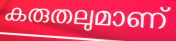
കരുതലുമാണ്